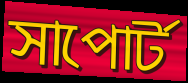
সাপোর্ট